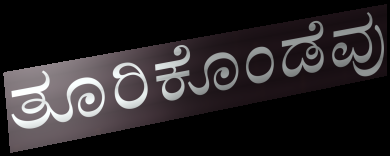
ತೂರಿಕೊಂಡೆವು